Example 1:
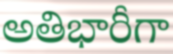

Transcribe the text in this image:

అతిభారీగా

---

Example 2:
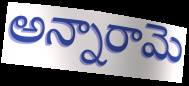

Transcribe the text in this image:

అన్నారామె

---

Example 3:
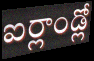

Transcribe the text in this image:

ఐర్లాండ్లో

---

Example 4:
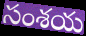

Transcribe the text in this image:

సంశయ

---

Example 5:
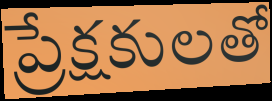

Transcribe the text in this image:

ప్రేక్షకులతో